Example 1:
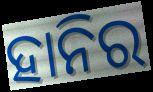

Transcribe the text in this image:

ହାନିର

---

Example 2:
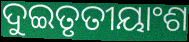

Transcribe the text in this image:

ଦୁଇତୃତୀୟାଂଶ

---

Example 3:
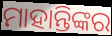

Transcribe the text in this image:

ମାହାନ୍ତିଙ୍କର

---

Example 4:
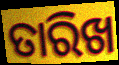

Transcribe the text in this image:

ତାରିଖ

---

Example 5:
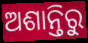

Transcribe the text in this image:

ଅଶାନ୍ତିରୁ